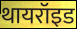
थायरॉइड